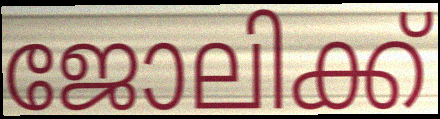
ജോലിക്ക്